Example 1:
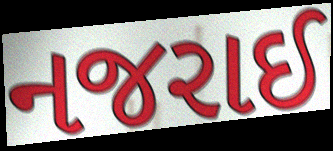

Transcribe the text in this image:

નજરાઈ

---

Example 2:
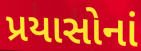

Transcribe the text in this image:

પ્રયાસોનાં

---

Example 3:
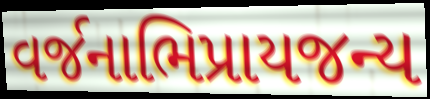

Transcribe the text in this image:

વર્જનાભિપ્રાયજન્ય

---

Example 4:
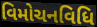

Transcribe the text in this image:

વિમોચનવિધિ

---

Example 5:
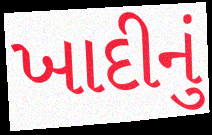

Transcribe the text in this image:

ખાદીનું